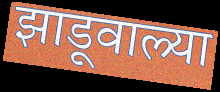
झाडूवाल्या